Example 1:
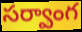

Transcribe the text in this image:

సర్వాంగ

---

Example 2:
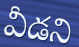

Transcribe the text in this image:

వీడని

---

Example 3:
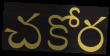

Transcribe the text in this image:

చకోర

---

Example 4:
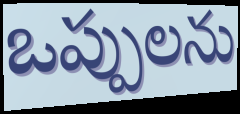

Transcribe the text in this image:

ఒప్పులను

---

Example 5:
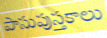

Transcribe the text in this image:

పాసుపుస్తకాలు